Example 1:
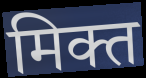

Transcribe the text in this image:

मिक्त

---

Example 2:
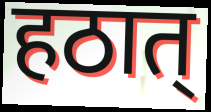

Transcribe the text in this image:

हठात्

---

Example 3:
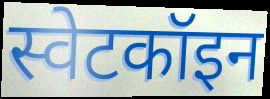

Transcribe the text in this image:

स्वेटकॉइन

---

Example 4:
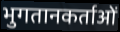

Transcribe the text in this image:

भुगतानकर्ताओं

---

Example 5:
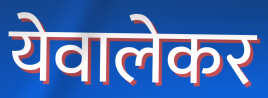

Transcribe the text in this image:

येवालेकर